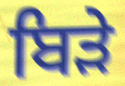
ਬਿੜੇ